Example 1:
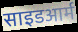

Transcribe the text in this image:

साइडआर्म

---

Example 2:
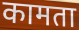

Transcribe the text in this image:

कामता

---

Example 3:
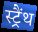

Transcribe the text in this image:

स्ट्रैंथ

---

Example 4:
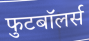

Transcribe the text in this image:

फुटबॉलर्स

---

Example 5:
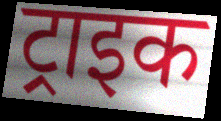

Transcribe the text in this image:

ट्राइक